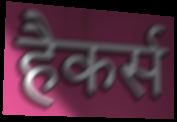
हैकर्स